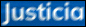
Justicia